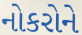
નોકરોને